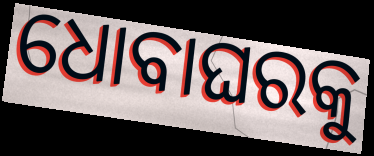
ଧୋବାଘରକୁ